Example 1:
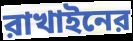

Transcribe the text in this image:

রাখাইনের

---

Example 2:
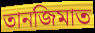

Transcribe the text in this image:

তানজিমাত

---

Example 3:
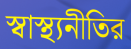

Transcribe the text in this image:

স্বাস্থ্যনীতির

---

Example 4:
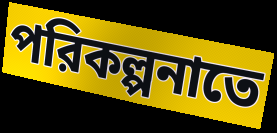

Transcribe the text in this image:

পরিকল্পনাতে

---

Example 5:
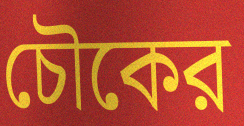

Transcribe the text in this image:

চৌকের